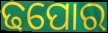
ଢପୋର